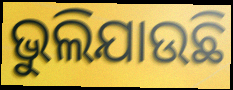
ଭୁଲିଯାଉଛି